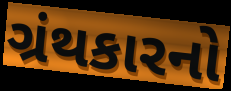
ગ્રંથકારનો